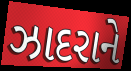
ઝાદરાને